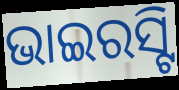
ଭାଇରସ୍ଟି